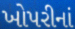
ખોપરીનાં